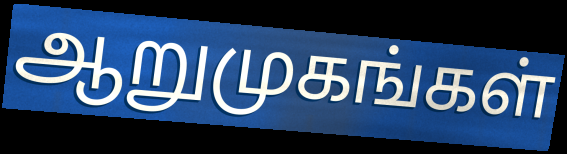
ஆறுமுகங்கள்